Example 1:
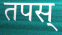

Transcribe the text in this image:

तपस्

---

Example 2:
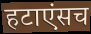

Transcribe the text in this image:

हटाएंसच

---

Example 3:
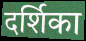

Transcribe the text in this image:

दर्शिका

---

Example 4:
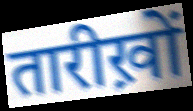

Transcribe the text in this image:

तारीख़ों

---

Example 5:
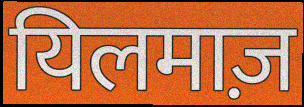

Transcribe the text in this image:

यिलमाज़